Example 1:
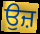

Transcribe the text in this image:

ਉਜ਼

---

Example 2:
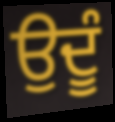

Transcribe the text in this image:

ਉਦੂੰ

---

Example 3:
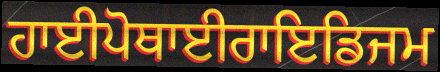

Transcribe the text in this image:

ਹਾਈਪੋਥਾਈਰਾਇਡਿਜਮ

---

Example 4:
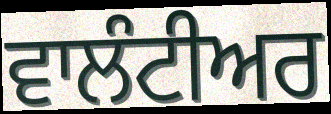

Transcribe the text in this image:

ਵਾਲੰਟੀਅਰ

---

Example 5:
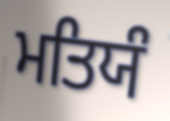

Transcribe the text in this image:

ਮਤਿਯੰ